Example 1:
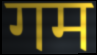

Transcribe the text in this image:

गम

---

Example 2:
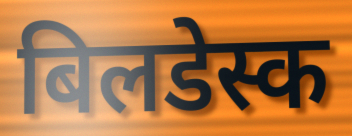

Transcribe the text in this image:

बिलडेस्क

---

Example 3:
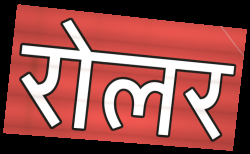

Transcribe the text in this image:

रोलर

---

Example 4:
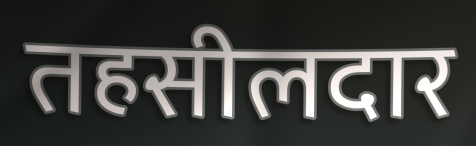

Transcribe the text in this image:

तहसीलदार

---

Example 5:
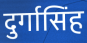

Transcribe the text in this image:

दुर्गासिंह